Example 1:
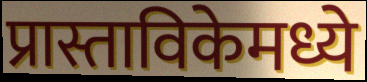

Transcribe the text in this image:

प्रास्ताविकेमध्ये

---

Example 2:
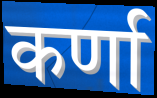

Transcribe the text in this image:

कर्णा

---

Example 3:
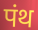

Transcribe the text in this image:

पंथ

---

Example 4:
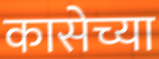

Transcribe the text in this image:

कासेच्या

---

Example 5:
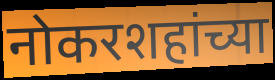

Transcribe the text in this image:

नोकरशहांच्या